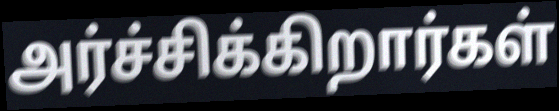
அர்ச்சிக்கிறார்கள்